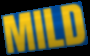
MILD